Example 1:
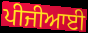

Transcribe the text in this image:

ਪੀਜੀਆਈ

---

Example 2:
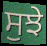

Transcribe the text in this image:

ਸੁਝੇ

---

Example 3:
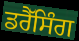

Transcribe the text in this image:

ਡਰੈੱਸਿੰਗ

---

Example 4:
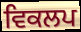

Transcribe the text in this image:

ਵਿਕਲਪ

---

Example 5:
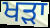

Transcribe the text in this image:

ਖੜਾ